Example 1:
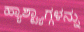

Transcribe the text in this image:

ಹ್ಯಾಶ್ಟ್ಯಾಗ್ಗಳನ್ನು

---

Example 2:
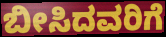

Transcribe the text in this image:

ಬೀಸಿದವರಿಗೆ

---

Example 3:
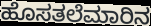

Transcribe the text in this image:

ಹೊಸತಲೆಮಾರಿನ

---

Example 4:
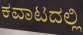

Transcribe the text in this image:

ಕವಾಟದಲ್ಲಿ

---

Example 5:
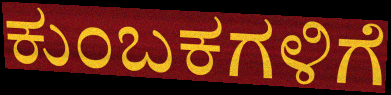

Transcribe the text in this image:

ಕುಂಬಕಗಳಿಗೆ